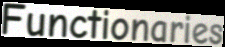
Functionaries